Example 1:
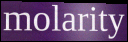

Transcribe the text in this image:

molarity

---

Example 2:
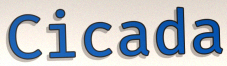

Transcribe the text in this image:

Cicada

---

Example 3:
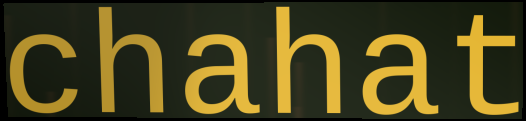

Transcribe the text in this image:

chahat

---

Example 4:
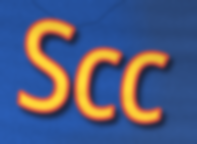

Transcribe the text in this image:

Scc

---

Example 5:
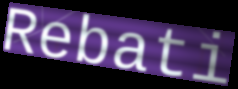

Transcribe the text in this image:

Rebati